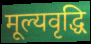
मूल्यवृद्धि